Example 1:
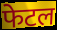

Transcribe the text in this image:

फेटल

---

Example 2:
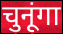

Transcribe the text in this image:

चुनूंगा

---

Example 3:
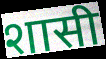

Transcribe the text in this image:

शासी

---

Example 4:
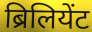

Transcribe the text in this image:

ब्रिलियेंट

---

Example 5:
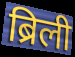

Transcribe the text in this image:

ब्रिली